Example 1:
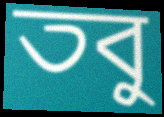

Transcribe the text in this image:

তবু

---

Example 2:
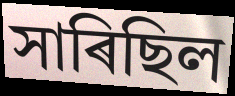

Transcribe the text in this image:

সাৰিছিল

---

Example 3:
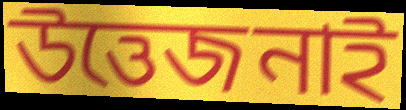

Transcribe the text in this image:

উত্তেজনাই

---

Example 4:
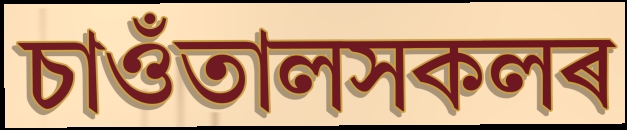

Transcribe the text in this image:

চাওঁতালসকলৰ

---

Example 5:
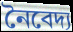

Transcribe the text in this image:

নৈবেদ্য